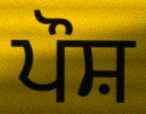
ਪੌਸ਼